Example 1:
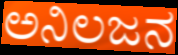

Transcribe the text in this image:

ಅನಿಲಜನ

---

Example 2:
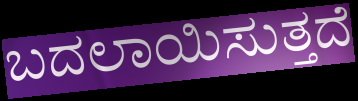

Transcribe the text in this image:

ಬದಲಾಯಿಸುತ್ತದೆ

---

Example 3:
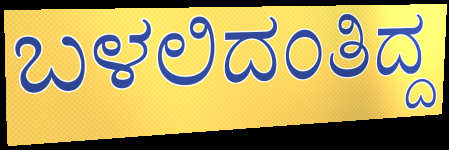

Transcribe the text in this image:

ಬಳಲಿದಂತಿದ್ದ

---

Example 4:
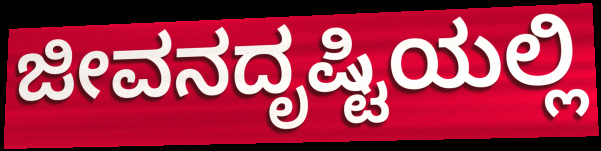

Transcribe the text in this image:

ಜೀವನದೃಷ್ಟಿಯಲ್ಲಿ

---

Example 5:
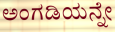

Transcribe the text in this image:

ಅಂಗಡಿಯನ್ನೇ